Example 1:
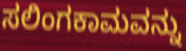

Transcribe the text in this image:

ಸಲಿಂಗಕಾಮವನ್ನು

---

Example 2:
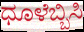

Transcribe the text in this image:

ಧೂಳೆಬ್ಬಿಸಿ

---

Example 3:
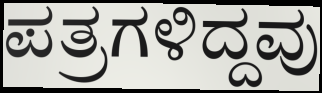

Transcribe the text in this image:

ಪತ್ರಗಳಿದ್ದವು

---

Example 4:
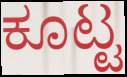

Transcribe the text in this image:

ಕೂಟ್ಟ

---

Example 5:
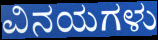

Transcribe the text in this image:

ವಿನಯಗಳು